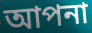
আপনা